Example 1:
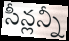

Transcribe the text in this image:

సీన్లన్నీ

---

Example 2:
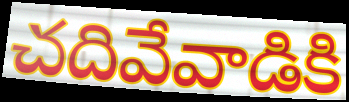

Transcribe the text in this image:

చదివేవాడికి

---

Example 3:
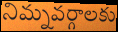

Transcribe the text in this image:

నిమ్నవర్గాలకు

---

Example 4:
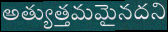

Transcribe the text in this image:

అత్యుత్తమమైనదని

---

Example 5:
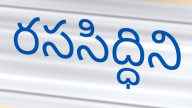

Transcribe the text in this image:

రససిద్ధిని